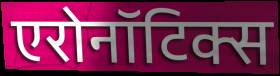
एरोनॉटिक्स